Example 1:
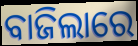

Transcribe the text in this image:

ବାଜିଲାରେ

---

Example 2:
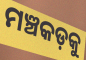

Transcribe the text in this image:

ମଞ୍ଚକଡ଼କୁ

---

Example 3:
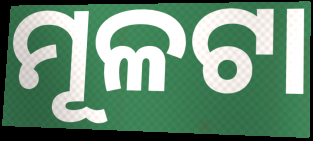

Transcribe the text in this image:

ମୂଳଟା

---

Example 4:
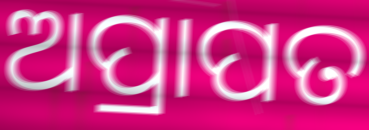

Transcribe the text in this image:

ଅପ୍ରାପତ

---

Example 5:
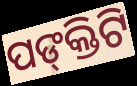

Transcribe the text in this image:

ପଙ୍‌କ୍ତିଟି